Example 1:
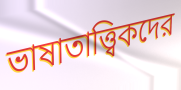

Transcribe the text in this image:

ভাষাতাত্ত্বিকদের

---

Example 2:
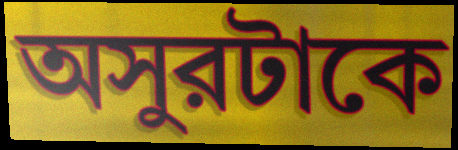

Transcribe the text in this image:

অসুরটাকে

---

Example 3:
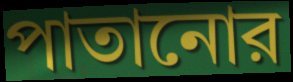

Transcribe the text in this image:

পাতানোর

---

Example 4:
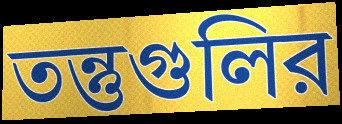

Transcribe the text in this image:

তন্তুগুলির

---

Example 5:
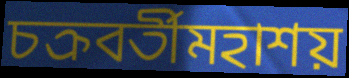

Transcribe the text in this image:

চক্রবর্তীমহাশয়